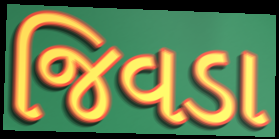
જિવડા